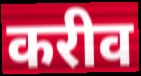
करीव